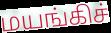
மயங்கிச்